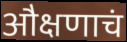
औक्षणाचं